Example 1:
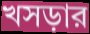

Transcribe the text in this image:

খসড়ার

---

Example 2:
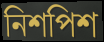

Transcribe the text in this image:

নিশপিশ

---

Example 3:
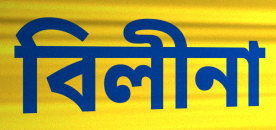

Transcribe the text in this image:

বিলীনা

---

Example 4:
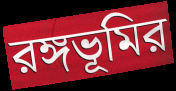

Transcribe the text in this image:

রঙ্গভূমির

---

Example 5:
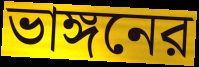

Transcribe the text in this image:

ভাঙ্গনের